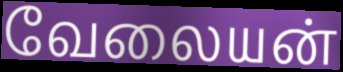
வேலையன்